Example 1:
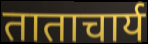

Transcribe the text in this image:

ताताचार्य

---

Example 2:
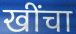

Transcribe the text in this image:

खींचा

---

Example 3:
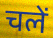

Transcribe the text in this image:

चलें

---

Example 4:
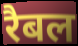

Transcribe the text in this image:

रैबल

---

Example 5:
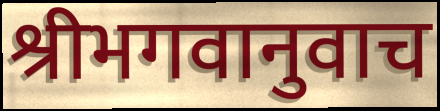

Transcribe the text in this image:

श्रीभगवानुवाच